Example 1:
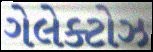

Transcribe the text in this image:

ગેલેક્ટોઝ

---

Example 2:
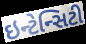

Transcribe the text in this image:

ઇન્ટેન્સિટી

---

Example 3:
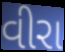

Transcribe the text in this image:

વીરા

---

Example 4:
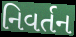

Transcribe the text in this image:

નિવર્તન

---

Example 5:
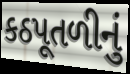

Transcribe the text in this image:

કઠપૂતળીનું